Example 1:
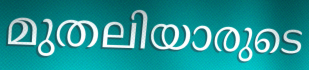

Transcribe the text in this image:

മുതലിയാരുടെ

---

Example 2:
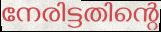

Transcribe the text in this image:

നേരിട്ടതിന്റെ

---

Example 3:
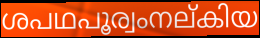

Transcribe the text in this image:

ശപഥപൂര്വംനല്കിയ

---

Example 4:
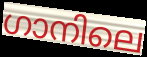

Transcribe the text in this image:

ഗാനിലെ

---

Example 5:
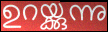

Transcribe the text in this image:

ഉറയ്ക്കുന്നു